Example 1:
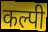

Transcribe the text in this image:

कल्पी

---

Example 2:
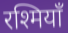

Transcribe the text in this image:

रश्मियाँ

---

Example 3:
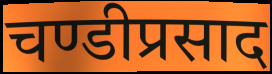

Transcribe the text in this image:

चण्डीप्रसाद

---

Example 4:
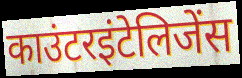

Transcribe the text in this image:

काउंटरइंटेलिजेंस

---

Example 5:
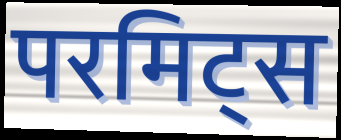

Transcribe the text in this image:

परमिट्स